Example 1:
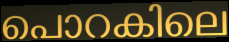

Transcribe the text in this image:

പൊറകിലെ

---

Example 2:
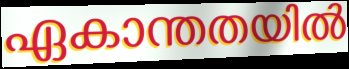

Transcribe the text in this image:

ഏകാന്തതയിൽ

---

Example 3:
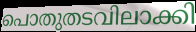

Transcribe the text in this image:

പൊതുതടവിലാക്കി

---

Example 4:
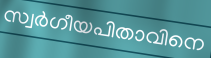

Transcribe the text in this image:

സ്വർഗീയപിതാവിനെ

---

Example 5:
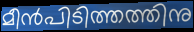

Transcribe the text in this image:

മീൻപിടിത്തത്തിനു